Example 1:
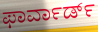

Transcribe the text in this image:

ಫಾರ್ವಾರ್ಡ್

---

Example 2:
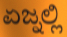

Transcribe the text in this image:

ಏಜ್ನಲ್ಲಿ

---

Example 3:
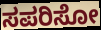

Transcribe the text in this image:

ಸಪರಿಸೋ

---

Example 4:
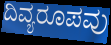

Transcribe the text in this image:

ದಿವ್ಯರೂಪವು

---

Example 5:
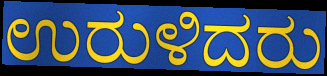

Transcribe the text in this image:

ಉರುಳಿದರು